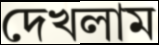
দেখলাম